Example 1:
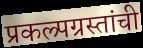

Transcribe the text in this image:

प्रकल्पग्रस्तांची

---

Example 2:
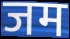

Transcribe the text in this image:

जम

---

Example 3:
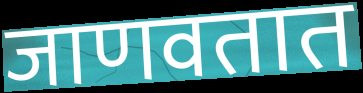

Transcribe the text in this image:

जाणवतात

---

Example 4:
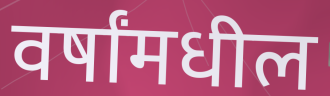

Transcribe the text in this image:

वर्षांमधील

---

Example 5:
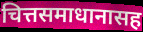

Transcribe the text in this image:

चित्तसमाधानासह